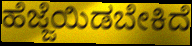
ಹೆಜ್ಜೆಯಿಡಬೇಕಿದೆ